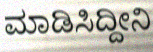
ಮಾಡಿಸಿದ್ದೀನಿ